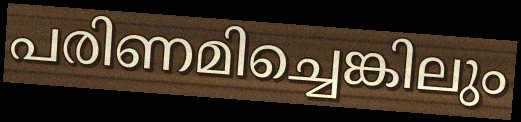
പരിണമിച്ചെങ്കിലും